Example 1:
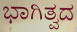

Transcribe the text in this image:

ಭಾಗಿತ್ವದ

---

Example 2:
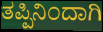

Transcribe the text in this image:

ತಪ್ಪಿನಿಂದಾಗಿ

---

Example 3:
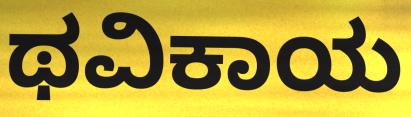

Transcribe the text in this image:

ಥವಿಕಾಯ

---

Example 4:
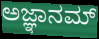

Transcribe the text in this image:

ಅಜ್ಞಾನಮ್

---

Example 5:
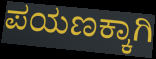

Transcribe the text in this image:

ಪಯಣಕ್ಕಾಗಿ